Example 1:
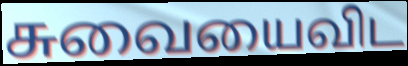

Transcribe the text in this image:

சுவையைவிட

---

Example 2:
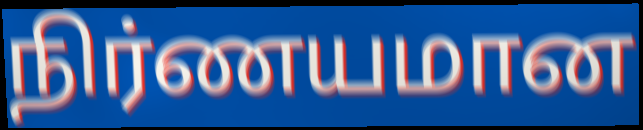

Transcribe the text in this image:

நிர்ணயமான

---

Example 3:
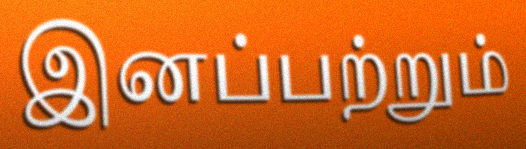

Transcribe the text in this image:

இனப்பற்றும்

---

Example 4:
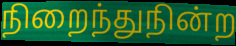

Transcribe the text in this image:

நிறைந்துநின்ற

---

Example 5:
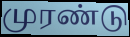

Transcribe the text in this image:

முரண்டு